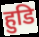
हुडि